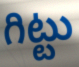
గిట్టు